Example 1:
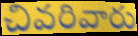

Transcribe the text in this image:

చివరివారు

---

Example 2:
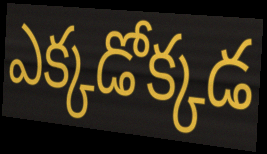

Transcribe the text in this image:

ఎక్కడోక్కడ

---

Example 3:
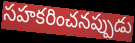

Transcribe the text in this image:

సహకరించనప్పుడు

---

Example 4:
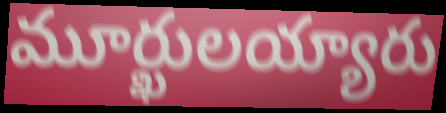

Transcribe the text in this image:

మూర్ఖులయ్యారు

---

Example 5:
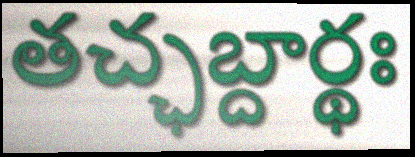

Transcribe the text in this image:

తచ్ఛబ్దార్థః